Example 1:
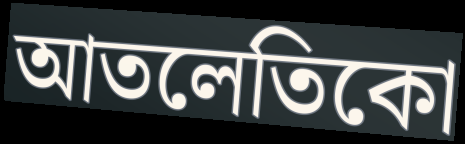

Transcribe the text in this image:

আতলেতিকো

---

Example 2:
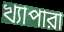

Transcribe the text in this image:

খ্যাপারা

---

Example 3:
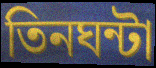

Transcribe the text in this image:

তিনঘন্টা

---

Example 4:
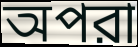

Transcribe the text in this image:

অপরা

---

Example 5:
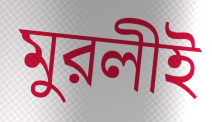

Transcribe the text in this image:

মুরলীই